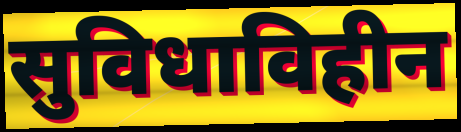
सुविधाविहीन